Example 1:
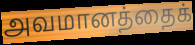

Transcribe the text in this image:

அவமானத்தைக்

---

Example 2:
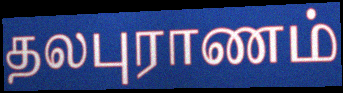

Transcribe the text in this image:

தலபுராணம்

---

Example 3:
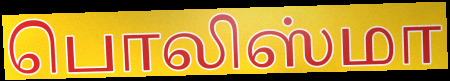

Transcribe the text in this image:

பொலிஸ்மா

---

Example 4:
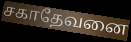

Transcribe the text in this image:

சகாதேவனை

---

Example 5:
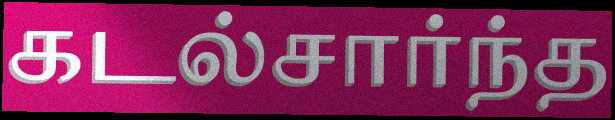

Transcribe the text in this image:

கடல்சார்ந்த